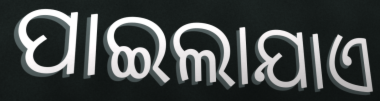
ପାଇଲାଯାଏ